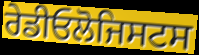
ਰੇਡੀਓਲੋਜਿਸਟਸ